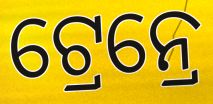
ଟ୍ରେନ୍ରେ